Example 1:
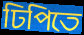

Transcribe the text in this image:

ঢিপিতে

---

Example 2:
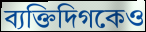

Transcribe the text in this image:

ব্যক্তিদিগকেও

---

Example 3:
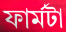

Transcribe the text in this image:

ফার্মটা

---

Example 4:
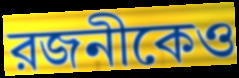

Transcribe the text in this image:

রজনীকেও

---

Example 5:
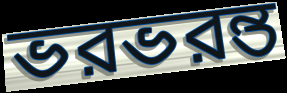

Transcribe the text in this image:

ভরভরন্ত